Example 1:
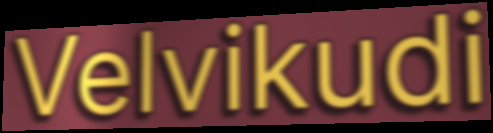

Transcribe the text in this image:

Velvikudi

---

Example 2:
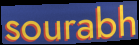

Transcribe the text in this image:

sourabh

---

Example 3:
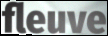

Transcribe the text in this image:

fleuve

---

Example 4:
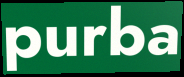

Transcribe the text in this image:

purba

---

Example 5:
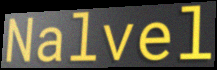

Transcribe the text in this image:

Nalvel